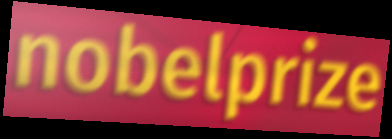
nobelprize